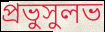
প্রভুসুলভ